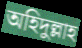
অহিদুল্লাহ